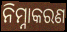
ନିମ୍ନାକରଣ